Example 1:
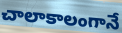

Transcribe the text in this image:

చాలాకాలంగానే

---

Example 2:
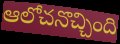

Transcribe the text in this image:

ఆలోచనొచ్చింది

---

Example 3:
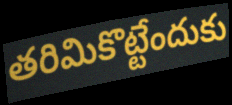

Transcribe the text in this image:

తరిమికొట్టేందుకు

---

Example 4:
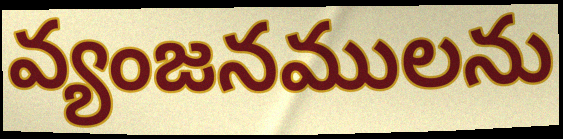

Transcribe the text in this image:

వ్యంజనములను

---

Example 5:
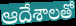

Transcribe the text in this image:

ఆదేశాలతో